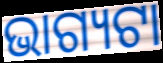
ଭାଗ୍ୟଟା